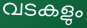
വടകളും